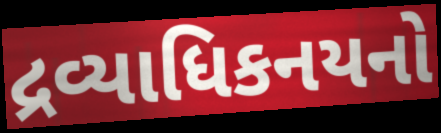
દ્રવ્યાધિકનયનો